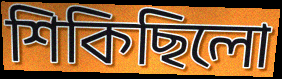
শিকিছিলো